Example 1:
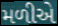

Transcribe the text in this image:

મળીએ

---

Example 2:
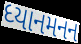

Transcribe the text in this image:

ધ્યાનમનન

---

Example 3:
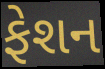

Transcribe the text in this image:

ફેશન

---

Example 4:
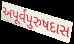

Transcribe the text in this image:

અપૂર્વપુરુષદાસ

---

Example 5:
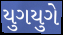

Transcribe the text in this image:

યુગયુગે